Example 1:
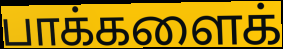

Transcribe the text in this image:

பாக்களைக்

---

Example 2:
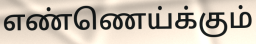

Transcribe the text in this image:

எண்ணெய்க்கும்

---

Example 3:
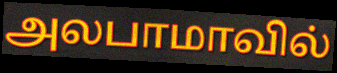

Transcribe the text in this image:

அலபாமாவில்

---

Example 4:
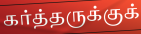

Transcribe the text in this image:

கர்த்தருக்குக்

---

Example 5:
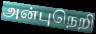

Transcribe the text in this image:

அன்புநெறி